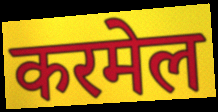
करमेल